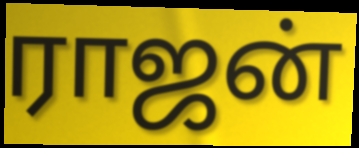
ராஜன்